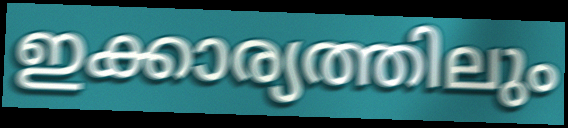
ഇക്കാര്യത്തിലും